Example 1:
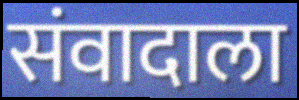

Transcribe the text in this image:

संवादाला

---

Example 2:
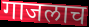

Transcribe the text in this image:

गाजलाच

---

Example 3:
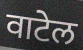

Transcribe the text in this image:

वाटेल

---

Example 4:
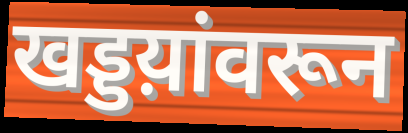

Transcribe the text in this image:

खड्डय़ांवरून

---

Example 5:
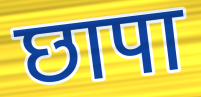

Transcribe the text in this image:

छापा